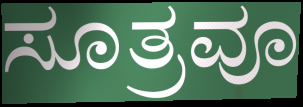
ಸೂತ್ರವೂ